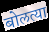
बोलत्या